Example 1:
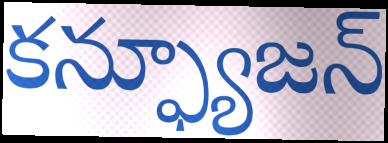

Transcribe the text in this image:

కన్ఫ్యూజన్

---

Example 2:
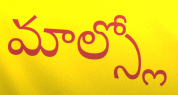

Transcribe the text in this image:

మాల్స్లో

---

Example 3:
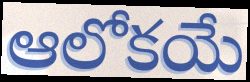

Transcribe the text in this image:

ఆలోకయే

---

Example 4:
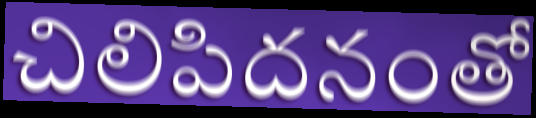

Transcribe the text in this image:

చిలిపిదనంతో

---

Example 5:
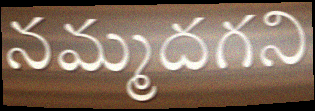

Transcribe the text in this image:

నమ్మదగని